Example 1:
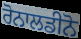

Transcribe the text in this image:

ਰੋਨਾਲਡੀਨੋ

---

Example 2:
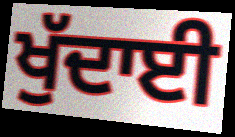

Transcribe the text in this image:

ਖੁੱਦਾਈ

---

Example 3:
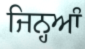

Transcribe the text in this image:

ਜਿਨ੍ਹਆੰ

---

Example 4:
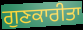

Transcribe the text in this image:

ਗੁਣਕਾਰੀਤਾ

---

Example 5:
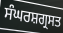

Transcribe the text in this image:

ਸੰਘਰਸ਼ਗ੍ਰਸਤ